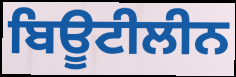
ਬਿਊਟੀਲੀਨ